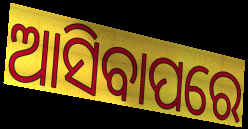
ଆସିବାପରେ